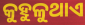
କୁହୁଳୁଥାଏ